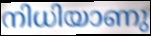
നിധിയാണു